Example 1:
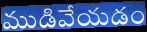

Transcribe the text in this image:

ముడివేయడం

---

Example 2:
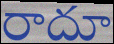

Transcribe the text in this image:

రాదూ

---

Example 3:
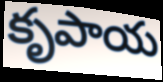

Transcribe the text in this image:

కృపాయ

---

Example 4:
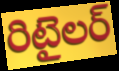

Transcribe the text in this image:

రిటైలర్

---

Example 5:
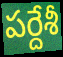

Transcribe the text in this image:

పర్దేశీ